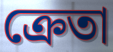
ক্ৰেতা